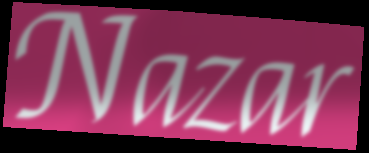
Nazar